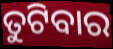
ତୁଟିବାର